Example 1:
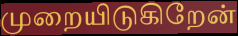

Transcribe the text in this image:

முறையிடுகிறேன்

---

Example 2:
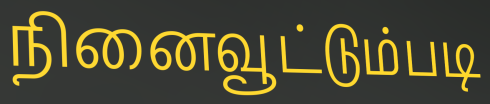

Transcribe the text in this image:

நினைவூட்டும்படி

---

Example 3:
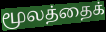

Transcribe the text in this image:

மூலத்தைக்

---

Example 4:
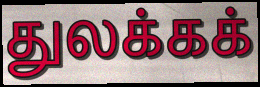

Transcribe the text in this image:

துலக்கக்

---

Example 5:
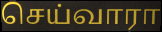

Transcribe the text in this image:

செய்வாரா